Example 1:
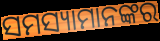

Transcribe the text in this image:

ସମସ୍ଯାମାନଙ୍କର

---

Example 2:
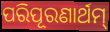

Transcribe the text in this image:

ପରିପୂରଣାର୍ଥମ୍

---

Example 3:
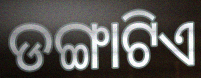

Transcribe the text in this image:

ଡଙ୍ଗାଟିଏ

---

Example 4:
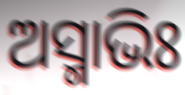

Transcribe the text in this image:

ଅସ୍ମାଭିଃ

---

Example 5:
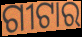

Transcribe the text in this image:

ଗୀଟାର